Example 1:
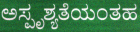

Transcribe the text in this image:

ಅಸ್ಪೃಶ್ಯತೆಯಂತಹ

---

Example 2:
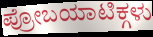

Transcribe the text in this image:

ಪ್ರೋಬಯಾಟಿಕ್ಗಳು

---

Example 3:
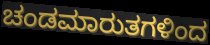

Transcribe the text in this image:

ಚಂಡಮಾರುತಗಳಿಂದ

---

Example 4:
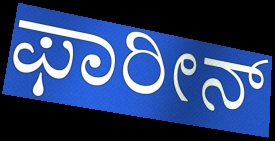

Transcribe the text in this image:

ಫಾರೀನ್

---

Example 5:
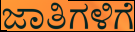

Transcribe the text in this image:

ಜಾತಿಗಳಿಗೆ